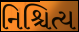
નિશ્ચિત્ય